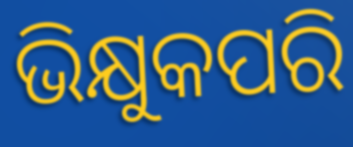
ଭିକ୍ଷୁକପରି